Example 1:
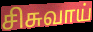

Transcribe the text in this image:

சிசுவாய்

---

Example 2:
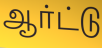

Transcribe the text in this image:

ஆர்ட்டு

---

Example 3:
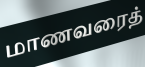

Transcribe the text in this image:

மாணவரைத்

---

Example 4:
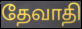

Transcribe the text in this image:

தேவாதி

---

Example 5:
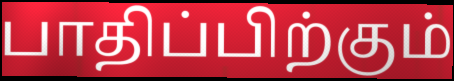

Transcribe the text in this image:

பாதிப்பிற்கும்